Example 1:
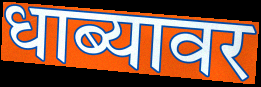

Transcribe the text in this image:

धाब्यावर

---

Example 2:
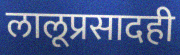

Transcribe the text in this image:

लालूप्रसादही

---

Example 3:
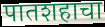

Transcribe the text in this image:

पातशहाचा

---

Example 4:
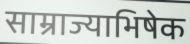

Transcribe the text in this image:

साम्राज्याभिषेक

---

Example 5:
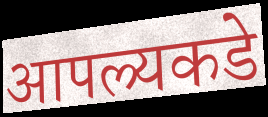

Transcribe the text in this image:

आपल्यकडे